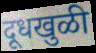
दूधखुळी